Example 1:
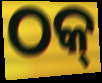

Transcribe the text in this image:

ଠକ୍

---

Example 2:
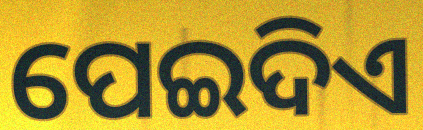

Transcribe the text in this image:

ପେଇଦିଏ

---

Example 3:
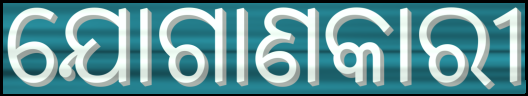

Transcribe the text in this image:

ଯୋଗାଣକାରୀ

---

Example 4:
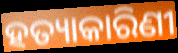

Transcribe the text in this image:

ହତ୍ୟାକାରିଣୀ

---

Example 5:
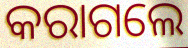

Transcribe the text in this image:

କରାଗଲେ